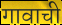
गावाची